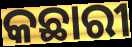
କଛାରୀ